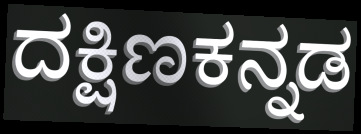
ದಕ್ಷಿಣಕನ್ನಡ